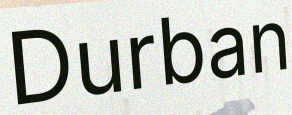
Durban